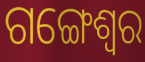
ଗଙ୍ଗେଶ୍ଵର